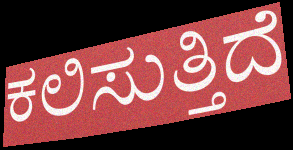
ಕಲಿಸುತ್ತಿದೆ